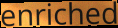
enriched